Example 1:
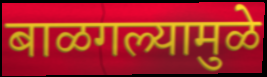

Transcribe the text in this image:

बाळगल्यामुळे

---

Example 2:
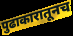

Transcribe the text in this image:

पुढाकारातूनच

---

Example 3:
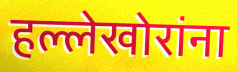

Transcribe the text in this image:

हल्लेखोरांना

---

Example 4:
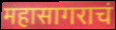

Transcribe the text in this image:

महासागराचं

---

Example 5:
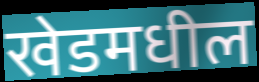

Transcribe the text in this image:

खेडमधील